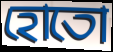
হোতো